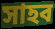
সাহব